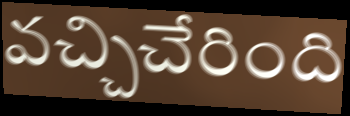
వచ్చిచేరింది